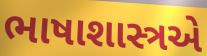
ભાષાશાસ્ત્રએ